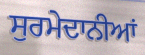
ਸੁਰਮੇਦਾਨੀਆਂ